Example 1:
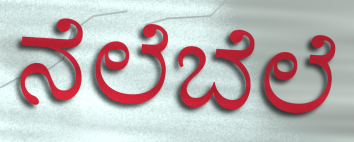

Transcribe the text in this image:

ನೆಲೆಬೆಲೆ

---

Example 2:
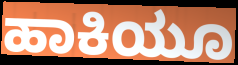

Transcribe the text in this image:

ಹಾಕಿಯೂ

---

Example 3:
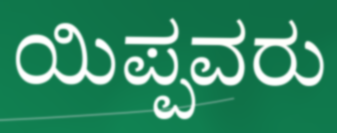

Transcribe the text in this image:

ಯಿಪ್ಪವರು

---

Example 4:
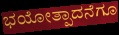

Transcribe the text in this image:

ಭಯೋತ್ಪಾದನೆಗೂ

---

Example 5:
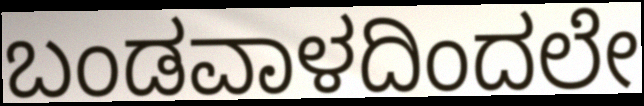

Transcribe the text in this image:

ಬಂಡವಾಳದಿಂದಲೇ